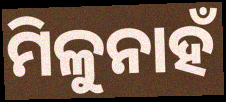
ମିଳୁନାହଁ